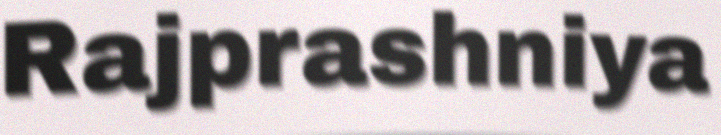
Rajprashniya